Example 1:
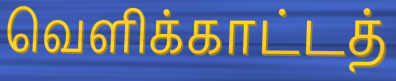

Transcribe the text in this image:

வெளிக்காட்டத்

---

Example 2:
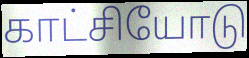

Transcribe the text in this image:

காட்சியோடு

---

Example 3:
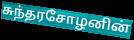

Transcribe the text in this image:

சுந்தரசோழனின்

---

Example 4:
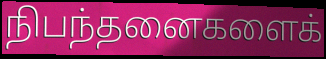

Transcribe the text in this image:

நிபந்தனைகளைக்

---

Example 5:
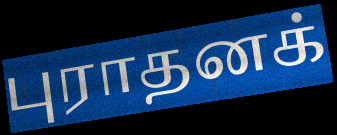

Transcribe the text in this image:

புராதனக்